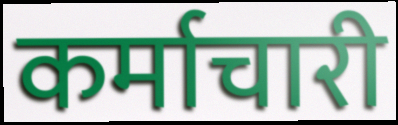
कर्माचारी